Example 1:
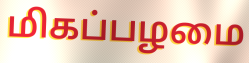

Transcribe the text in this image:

மிகப்பழமை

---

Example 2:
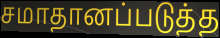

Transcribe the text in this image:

சமாதானப்படுத்த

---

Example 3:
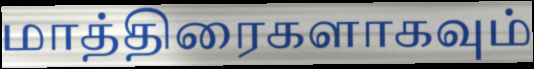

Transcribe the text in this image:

மாத்திரைகளாகவும்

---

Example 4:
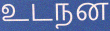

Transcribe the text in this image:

உடநன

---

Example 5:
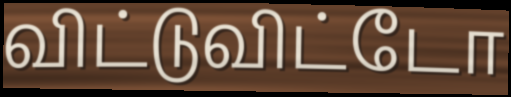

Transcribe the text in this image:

விட்டுவிட்டோ